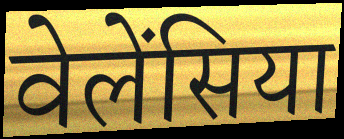
वेलेंसिया